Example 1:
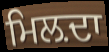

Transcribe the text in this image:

ਮਿਲ਼ਦਾ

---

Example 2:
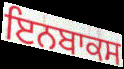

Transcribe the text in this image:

ਇਨਬਾਕਸ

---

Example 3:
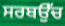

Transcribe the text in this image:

ਸਰਬਉੱਚ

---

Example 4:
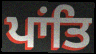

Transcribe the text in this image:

ਪਾਂਤਿ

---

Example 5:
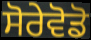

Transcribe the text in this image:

ਸੋਰੇਵੋਡੋ